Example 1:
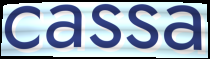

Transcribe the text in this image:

cassa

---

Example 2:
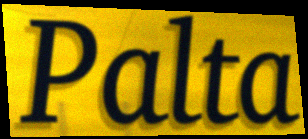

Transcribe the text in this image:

Palta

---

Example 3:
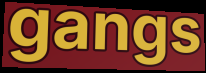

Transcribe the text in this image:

gangs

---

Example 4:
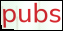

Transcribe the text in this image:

pubs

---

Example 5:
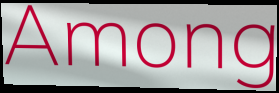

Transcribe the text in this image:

Among